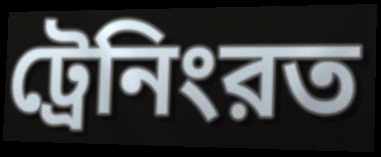
ট্রেনিংরত